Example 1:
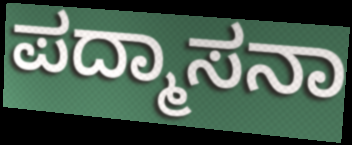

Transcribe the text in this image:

ಪದ್ಮಾಸನಾ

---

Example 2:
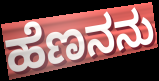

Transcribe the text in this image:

ಹೆಣನನು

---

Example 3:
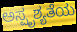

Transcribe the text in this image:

ಅಸ್ಪೃಶ್ಯತೆಯ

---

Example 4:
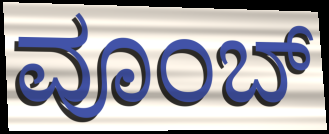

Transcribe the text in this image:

ವೂಂಬ್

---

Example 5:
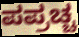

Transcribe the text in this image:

ಪಪ್ರಚ್ಚ